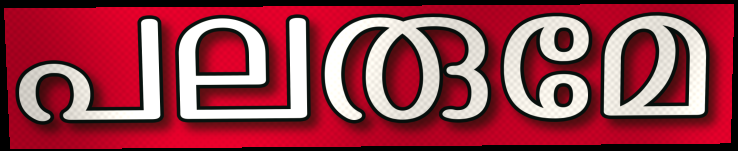
പലരുമേ